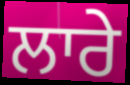
ਲਾਰੇ